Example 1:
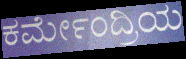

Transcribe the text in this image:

ಕರ್ಮೇಂದ್ರಿಯ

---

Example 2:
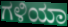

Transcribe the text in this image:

ಗಳಿಯಾ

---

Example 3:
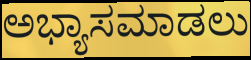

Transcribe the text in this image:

ಅಭ್ಯಾಸಮಾಡಲು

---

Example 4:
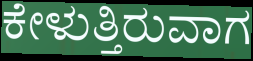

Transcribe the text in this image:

ಕೇಳುತ್ತಿರುವಾಗ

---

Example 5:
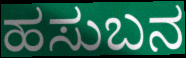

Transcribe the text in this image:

ಹಸುಬನ